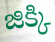
జిక్కి